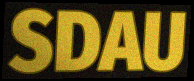
SDAU